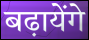
बढ़ायेंगे